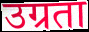
उग्रता